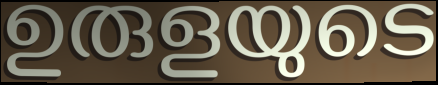
ഉരുളയുടെ